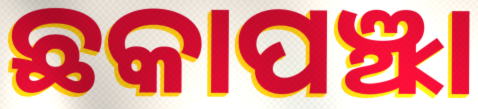
ଛକାପଞ୍ଝା